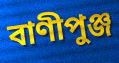
বাণীপুঞ্জ